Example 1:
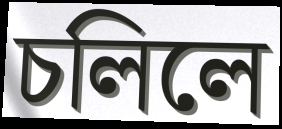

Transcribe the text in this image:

চলিলে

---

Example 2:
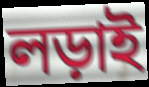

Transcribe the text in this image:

লড়াই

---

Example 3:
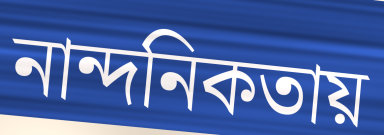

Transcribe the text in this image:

নান্দনিকতায়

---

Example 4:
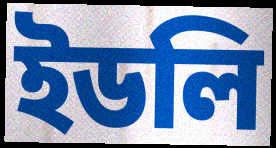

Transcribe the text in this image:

ইডলি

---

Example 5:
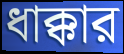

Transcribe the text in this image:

ধাক্কার